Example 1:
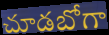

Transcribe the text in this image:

చూడబోగా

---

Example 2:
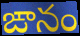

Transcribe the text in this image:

ఙానం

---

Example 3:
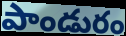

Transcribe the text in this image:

పాండురం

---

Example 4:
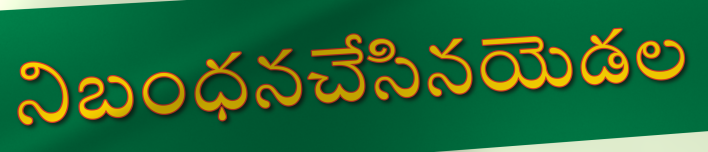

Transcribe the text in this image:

నిబంధనచేసినయెడల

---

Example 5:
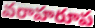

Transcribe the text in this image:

వరాహరూప